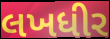
લખધીર